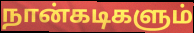
நான்கடிகளும்